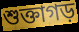
শুক্তাগড়